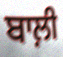
ਬਾਲ਼ੀ